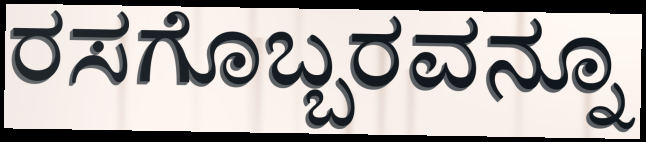
ರಸಗೊಬ್ಬರವನ್ನೂ